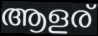
ആളര്